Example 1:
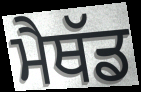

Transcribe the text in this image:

ਮੈਥੱਡ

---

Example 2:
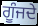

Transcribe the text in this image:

ਗੂੰਜਦੇ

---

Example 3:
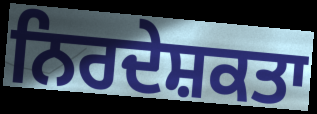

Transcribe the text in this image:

ਨਿਰਦੇਸ਼ਕਤਾ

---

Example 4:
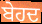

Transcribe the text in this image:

ਬੇਹਦ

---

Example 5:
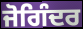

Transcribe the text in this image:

ਜੋਗਿੰਦਰ